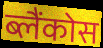
ब्लैंकोस